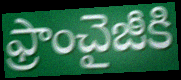
ఫ్రాంచైజీకి